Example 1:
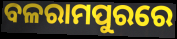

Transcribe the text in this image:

ବଳରାମପୁରରେ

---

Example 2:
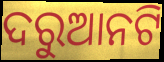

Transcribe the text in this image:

ଦରୁଆନଟି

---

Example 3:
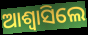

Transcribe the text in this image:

ଆଶ୍ୱାସିଲେ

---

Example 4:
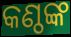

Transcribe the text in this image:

କଣ୍ଠଙ୍କ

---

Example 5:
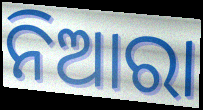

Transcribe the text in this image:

ନିଆରା